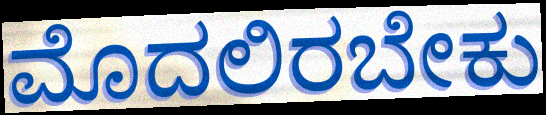
ಮೊದಲಿರಬೇಕು